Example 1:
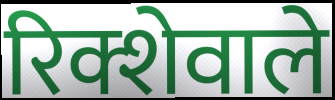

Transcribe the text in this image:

रिक्‍शेवाले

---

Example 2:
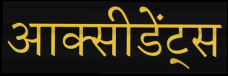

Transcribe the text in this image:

आक्सीडेंट्स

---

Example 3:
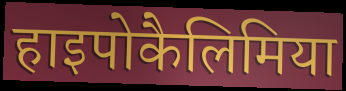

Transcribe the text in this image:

हाइपोकैलिमिया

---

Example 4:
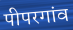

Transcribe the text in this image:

पीपरगांव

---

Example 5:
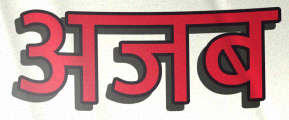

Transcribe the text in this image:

अजब